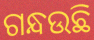
ଗନ୍ଧଉଛି